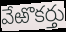
వేఱొకర్తు